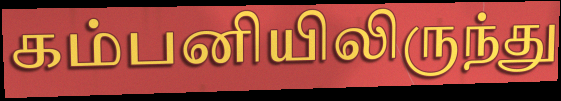
கம்பனியிலிருந்து